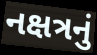
નક્ષત્રનું